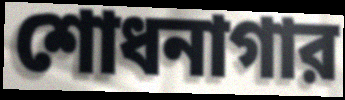
শোধনাগার